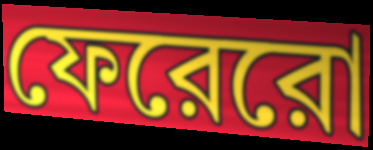
ফেরেরো